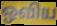
ஒவிய